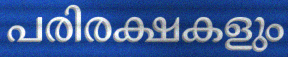
പരിരക്ഷകളും